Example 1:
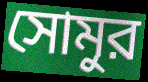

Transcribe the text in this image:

সোমুর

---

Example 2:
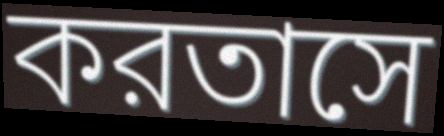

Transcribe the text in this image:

করতাসে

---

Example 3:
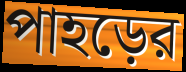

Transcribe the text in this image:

পাহড়ের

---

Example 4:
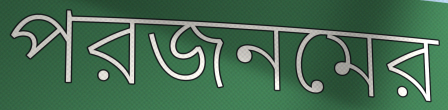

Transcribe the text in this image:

পরজনমের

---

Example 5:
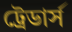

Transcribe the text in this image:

ট্রেডার্স